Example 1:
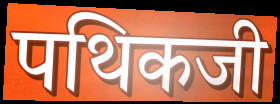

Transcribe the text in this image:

पथिकजी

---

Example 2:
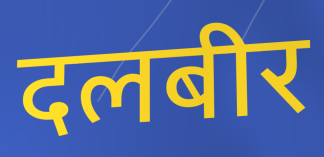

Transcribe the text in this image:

दलबीर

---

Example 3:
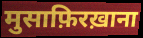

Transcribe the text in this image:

मुसाफ़िरख़ाना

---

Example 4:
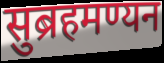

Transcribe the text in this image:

सुब्रहमण्यन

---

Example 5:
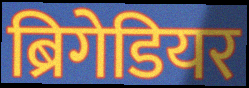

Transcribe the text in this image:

ब्रिगेडियर